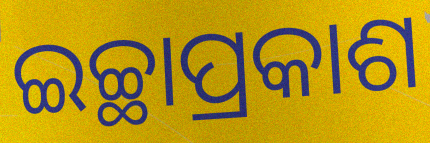
ଇଚ୍ଛାପ୍ରକାଶ